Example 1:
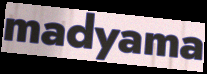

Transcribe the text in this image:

madyama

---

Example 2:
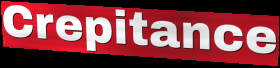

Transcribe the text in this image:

Crepitance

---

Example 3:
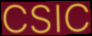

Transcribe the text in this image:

CSIC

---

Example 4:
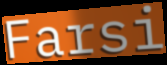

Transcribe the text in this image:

Farsi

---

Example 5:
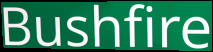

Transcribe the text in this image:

Bushfire